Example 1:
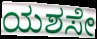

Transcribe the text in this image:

ಯಶಸೇ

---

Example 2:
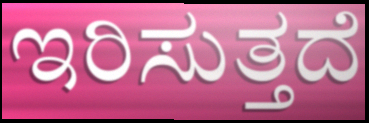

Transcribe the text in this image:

ಇರಿಸುತ್ತದೆ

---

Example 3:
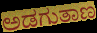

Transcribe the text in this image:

ಅಡಗುತಾಣ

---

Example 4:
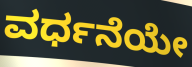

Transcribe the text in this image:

ವರ್ಧನೆಯೇ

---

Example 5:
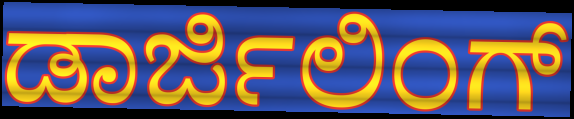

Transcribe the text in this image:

ಡಾರ್ಜಿಲಿಂಗ್